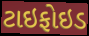
ટાઇફોઇડ